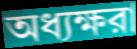
অধ্যক্ষরা